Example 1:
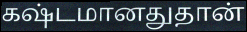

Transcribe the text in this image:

கஷ்டமானதுதான்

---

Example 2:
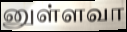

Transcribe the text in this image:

னுள்ளவா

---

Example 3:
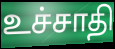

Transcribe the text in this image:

உச்சாதி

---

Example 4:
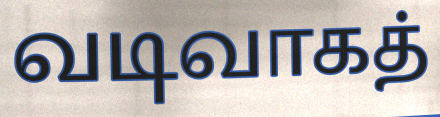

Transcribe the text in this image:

வடிவாகத்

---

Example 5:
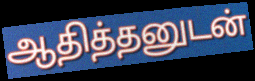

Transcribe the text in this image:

ஆதித்தனுடன்